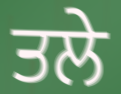
ਤਲੇ